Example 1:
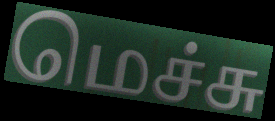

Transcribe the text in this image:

மெச்சு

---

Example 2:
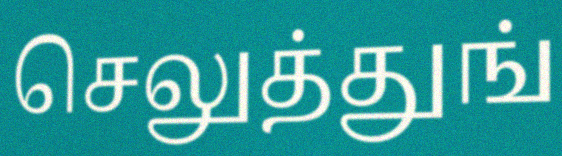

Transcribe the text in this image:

செலுத்துங்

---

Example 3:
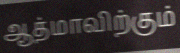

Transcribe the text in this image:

ஆத்மாவிற்கும்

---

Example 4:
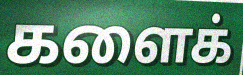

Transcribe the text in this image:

களைக்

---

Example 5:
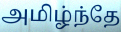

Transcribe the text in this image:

அமிழ்ந்தே